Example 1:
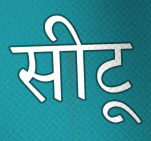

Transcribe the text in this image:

सीटू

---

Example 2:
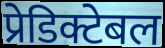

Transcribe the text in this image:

प्रेडिक्टेबल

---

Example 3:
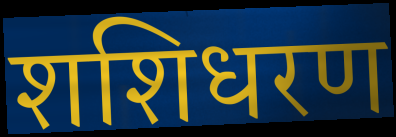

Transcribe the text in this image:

शशिधरण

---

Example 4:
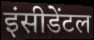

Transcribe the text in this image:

इंसीडेंटल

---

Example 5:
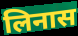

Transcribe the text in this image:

लिनास